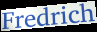
Fredrich